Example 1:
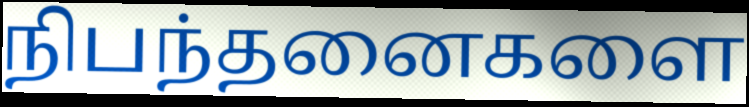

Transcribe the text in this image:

நிபந்தனைகளை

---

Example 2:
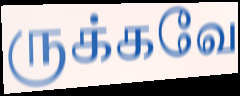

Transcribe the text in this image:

ருக்கவே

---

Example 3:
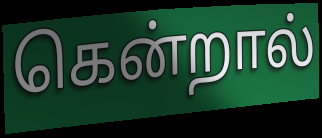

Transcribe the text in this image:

கென்றால்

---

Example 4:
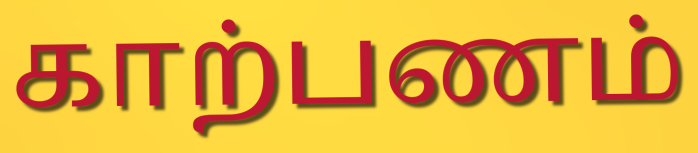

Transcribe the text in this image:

காற்பணம்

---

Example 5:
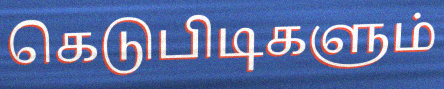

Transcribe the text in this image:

கெடுபிடிகளும்